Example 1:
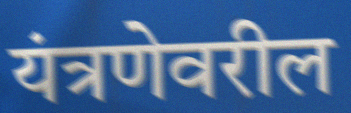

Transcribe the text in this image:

यंत्रणेवरील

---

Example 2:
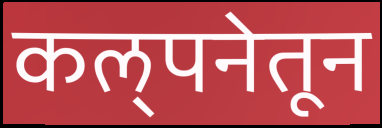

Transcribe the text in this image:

कल्पनेतून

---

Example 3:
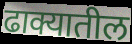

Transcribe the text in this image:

ढाक्यातील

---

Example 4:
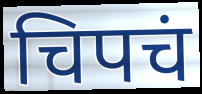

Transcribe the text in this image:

चिपचं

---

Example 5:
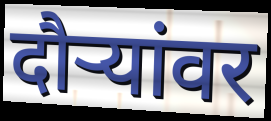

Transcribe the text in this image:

दौर्‍यांवर